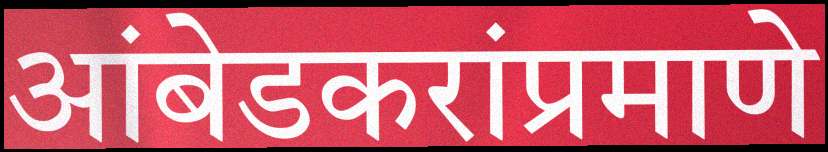
आंबेडकरांप्रमाणे